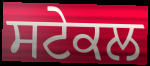
ਸਟੇਕਲ